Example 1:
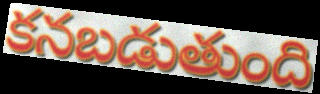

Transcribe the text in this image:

కనబడుతుంది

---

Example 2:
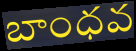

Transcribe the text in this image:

బాంధవ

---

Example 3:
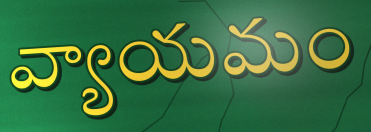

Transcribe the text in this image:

వ్యాయమం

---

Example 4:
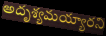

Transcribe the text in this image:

అదృశ్యమయ్యారని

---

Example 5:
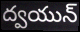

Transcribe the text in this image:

ద్వయున్